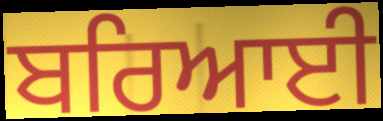
ਬਰਿਆਈ